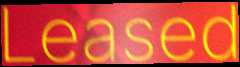
Leased